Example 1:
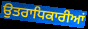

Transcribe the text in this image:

ਉਤਰਾਧਿਕਾਰੀਆਂ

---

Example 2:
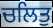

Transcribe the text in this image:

ਚਲਿਤੁ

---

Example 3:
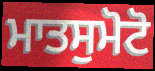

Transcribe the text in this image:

ਮਾਤਸੁਮੋਟੋ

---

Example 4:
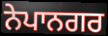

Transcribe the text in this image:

ਨੇਪਾਨਗਰ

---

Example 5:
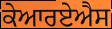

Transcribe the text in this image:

ਕੇਆਰਏਐਸ